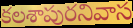
కలశాపురనివాస